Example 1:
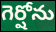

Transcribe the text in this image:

గెర్షోను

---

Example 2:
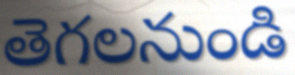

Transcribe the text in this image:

తెగలనుండి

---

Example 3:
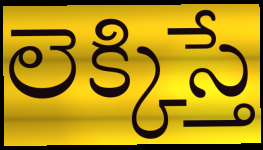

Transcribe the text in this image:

లెక్కిస్తే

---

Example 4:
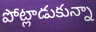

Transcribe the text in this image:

పోట్లాడుకున్నా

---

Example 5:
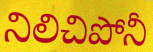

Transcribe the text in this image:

నిలిచిపోనీ